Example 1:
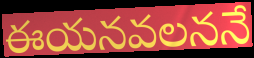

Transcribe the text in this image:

ఈయనవలననే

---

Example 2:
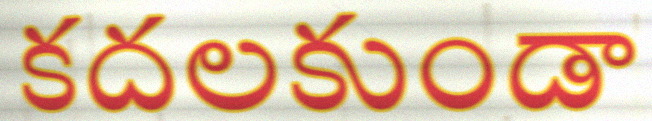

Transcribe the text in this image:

కదలకుండా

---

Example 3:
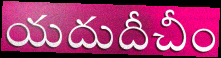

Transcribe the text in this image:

యదుదీచీం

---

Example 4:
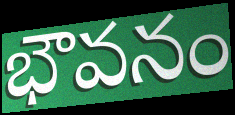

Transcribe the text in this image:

భౌవనం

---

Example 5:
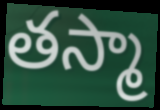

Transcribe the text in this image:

తస్మా